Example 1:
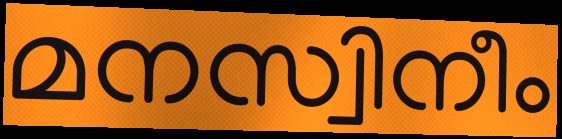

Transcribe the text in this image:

മനസ്വിനീം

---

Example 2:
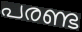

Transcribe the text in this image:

പരണ്ട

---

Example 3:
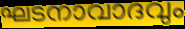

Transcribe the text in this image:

ഘടനാവാദവും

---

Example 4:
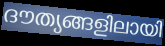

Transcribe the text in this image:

ദൗത്യങ്ങളിലായി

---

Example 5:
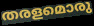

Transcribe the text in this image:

തരളമൊരു